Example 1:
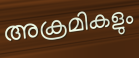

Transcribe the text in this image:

അക്രമികളും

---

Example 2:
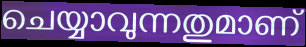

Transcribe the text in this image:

ചെയ്യാവുന്നതുമാണ്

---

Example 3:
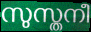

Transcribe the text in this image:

സുസ്തനീ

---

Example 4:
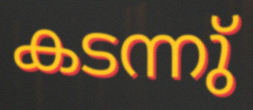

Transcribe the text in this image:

കടന്നു്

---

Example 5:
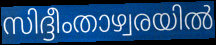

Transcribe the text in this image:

സിദ്ദീംതാഴ്വരയിൽ